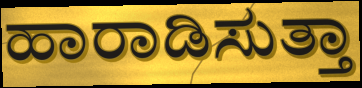
ಹಾರಾಡಿಸುತ್ತಾ